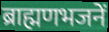
ब्राह्मणभजनें